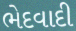
ભેદવાદી